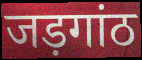
जड़गांठ